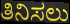
ತಿನಿಸಲು